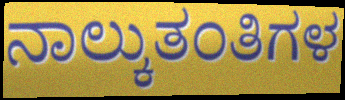
ನಾಲ್ಕುತಂತಿಗಳ